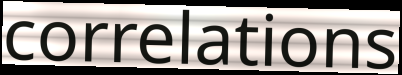
correlations